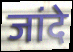
जांदे